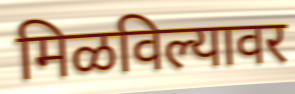
मिळविल्यावर